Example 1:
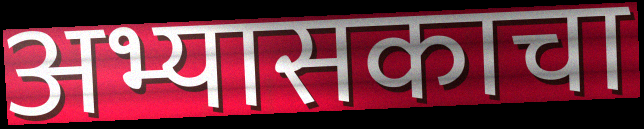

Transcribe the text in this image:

अभ्यासकाचा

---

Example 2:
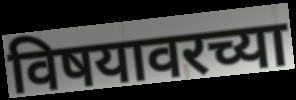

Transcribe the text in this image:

विषयावरच्या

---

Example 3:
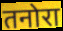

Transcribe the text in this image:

तनोरा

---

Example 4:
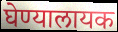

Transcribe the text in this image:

घेण्यालायक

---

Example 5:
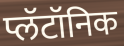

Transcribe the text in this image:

प्लॅटॉनिक